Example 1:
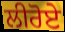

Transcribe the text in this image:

ਲੀਰੋਏ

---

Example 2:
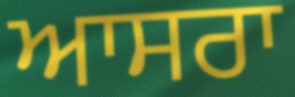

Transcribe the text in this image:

ਆਸਰਾ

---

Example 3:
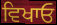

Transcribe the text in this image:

ਵਿਖਾਓ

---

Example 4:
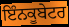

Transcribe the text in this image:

ਇੰਨਕੂਬੇਟਰ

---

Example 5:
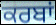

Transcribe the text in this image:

ਕਰਬਾਂ